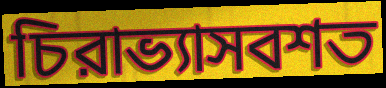
চিরাভ্যাসবশত